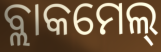
ବ୍ଲାକମେଲ୍